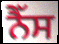
ਨੈੱਸ